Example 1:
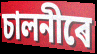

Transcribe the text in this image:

চালনীৰে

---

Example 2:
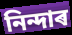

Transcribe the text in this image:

নিন্দাৰ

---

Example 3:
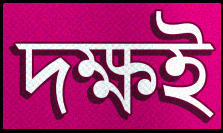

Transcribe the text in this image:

দক্ষই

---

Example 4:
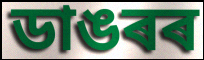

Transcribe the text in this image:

ডাঙৰৰ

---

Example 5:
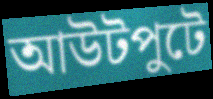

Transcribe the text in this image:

আউটপুটে